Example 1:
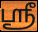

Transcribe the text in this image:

ஸ்ரீ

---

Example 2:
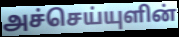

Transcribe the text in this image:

அச்செய்யுளின்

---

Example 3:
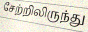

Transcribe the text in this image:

சேற்றிலிருந்து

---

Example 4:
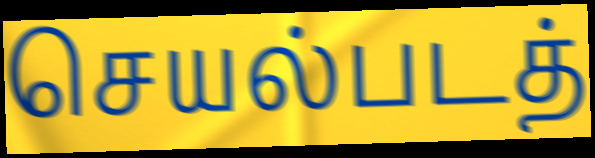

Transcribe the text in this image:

செயல்படத்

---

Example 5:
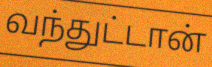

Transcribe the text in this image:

வந்துட்டான்